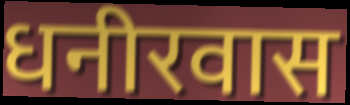
धनीरवास